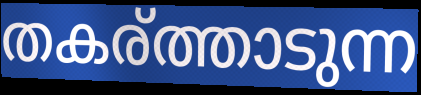
തകര്ത്താടുന്ന